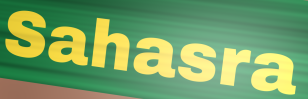
Sahasra